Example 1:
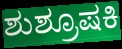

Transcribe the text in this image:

ಶುಶ್ರೂಷಕಿ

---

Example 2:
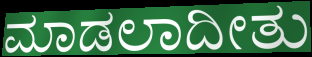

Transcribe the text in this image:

ಮಾಡಲಾದೀತು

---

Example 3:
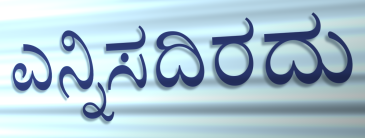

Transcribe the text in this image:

ಎನ್ನಿಸದಿರದು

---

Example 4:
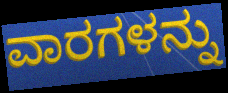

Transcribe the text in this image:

ವಾರಗಳನ್ನು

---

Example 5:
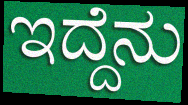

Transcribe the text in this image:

ಇದ್ದೆನು